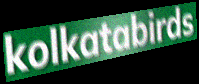
kolkatabirds